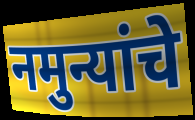
नमुन्यांचे